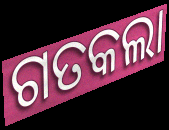
ଗତକଲା